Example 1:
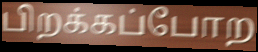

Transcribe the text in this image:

பிறக்கப்போற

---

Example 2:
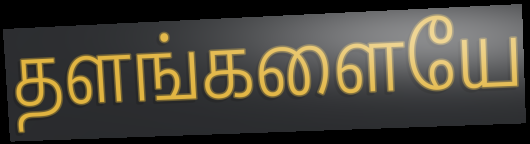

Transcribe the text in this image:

தளங்களையே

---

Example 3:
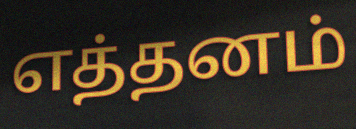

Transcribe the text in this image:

எத்தனம்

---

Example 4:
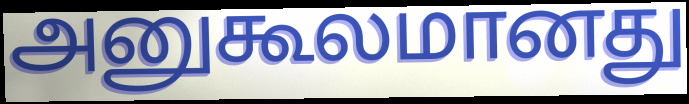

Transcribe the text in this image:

அனுகூலமானது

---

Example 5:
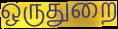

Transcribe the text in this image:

ஒருதுறை